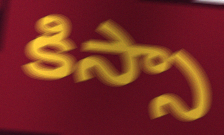
కిస్సా